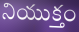
నియుక్తం